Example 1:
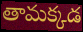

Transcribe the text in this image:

తామక్కడ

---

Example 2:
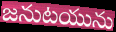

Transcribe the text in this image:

జనుటయును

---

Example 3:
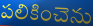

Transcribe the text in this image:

పలికించెను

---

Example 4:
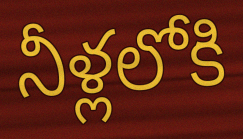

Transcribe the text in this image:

నీళ్లలోకి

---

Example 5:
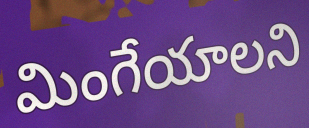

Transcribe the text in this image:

మింగేయాలని